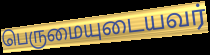
பெருமையுடையவர்